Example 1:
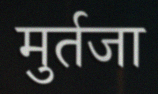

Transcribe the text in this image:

मुर्तजा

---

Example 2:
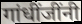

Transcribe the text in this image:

गांधींजींनी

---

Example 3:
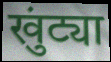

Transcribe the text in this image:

खुंट्या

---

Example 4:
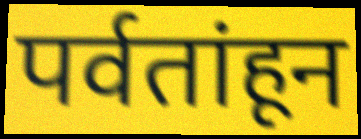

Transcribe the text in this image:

पर्वतांहून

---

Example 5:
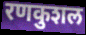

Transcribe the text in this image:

रणकुशल